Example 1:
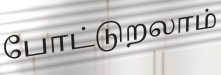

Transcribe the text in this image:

போட்டுறலாம்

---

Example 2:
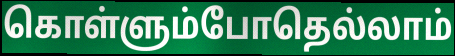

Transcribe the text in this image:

கொள்ளும்போதெல்லாம்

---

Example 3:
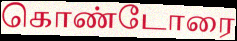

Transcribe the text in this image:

கொண்டோரை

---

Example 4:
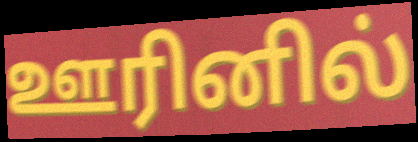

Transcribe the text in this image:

ஊரினில்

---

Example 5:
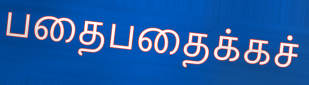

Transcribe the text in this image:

பதைபதைக்கச்